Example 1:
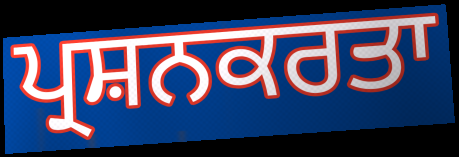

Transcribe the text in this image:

ਪ੍ਰਸ਼ਨਕਰਤਾ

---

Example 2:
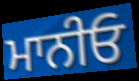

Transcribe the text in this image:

ਮਾਨੀਓ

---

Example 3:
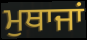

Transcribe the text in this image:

ਮੁਥਾਜਾਂ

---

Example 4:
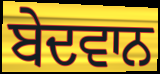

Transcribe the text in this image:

ਬੇਦਵਾਨ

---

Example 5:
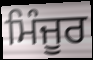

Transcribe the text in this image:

ਮਿੰਜੂਰ